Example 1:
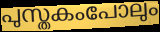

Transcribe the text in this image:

പുസ്തകംപോലും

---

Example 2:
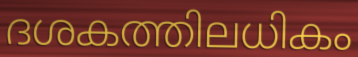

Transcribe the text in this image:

ദശകത്തിലധികം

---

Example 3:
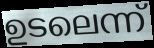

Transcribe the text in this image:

ഉടലെന്ന്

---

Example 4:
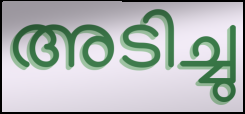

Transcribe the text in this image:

അടിച്ചു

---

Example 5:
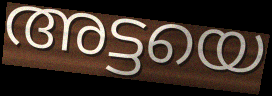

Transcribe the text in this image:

അട്ടയെ